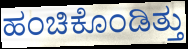
ಹಂಚಿಕೊಂಡಿತ್ತು